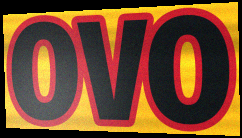
OVO